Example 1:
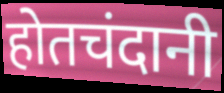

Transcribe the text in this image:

होतचंदानी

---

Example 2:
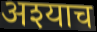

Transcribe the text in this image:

अश्याच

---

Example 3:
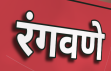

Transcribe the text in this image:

रंगवणे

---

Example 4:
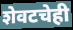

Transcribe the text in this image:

शेवटचेही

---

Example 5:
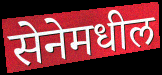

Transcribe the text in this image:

सेनेमधील